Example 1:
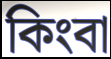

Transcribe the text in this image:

কিংবা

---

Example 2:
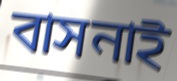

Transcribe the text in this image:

বাসনাই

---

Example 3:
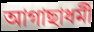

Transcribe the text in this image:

আগাছাধর্মী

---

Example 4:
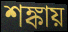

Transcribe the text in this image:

শঙ্কায়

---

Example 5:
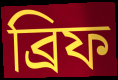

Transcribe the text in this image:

ব্রিফ